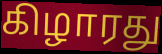
கிழாரது